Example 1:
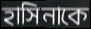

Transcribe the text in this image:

হাসিনাকে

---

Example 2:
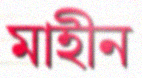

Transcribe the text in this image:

মাহীন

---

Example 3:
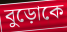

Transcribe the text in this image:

বুড়োকে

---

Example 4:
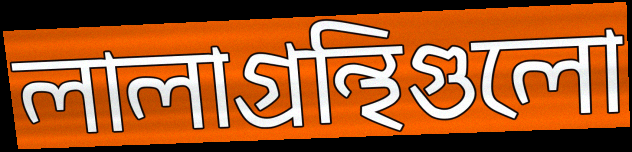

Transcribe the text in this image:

লালাগ্রন্থিগুলো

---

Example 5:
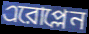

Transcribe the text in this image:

এরোপ্লেন